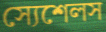
স্যেশেলস